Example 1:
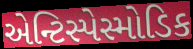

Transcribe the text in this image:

એન્ટિસ્પેસ્મોડિક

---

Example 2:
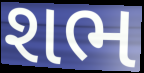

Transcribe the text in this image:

શભ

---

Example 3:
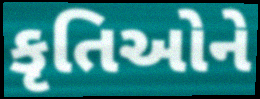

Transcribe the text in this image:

કૃતિઓને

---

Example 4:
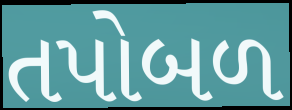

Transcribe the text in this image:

તપોબળ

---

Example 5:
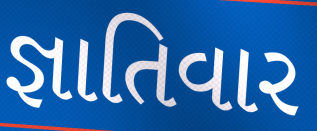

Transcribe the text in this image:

જ્ઞાતિવાર